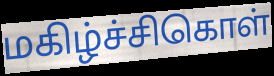
மகிழ்ச்சிகொள்